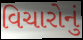
વિચારોનું